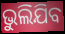
ଭୁଲିଯିବ